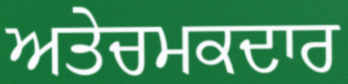
ਅਤੇਚਮਕਦਾਰ